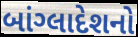
બાંગ્લાદેશનો